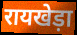
रायखेड़ा